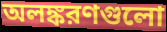
অলঙ্করণগুলো